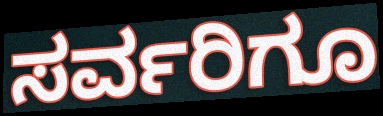
ಸರ್ವರಿಗೂ